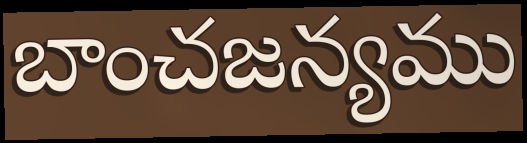
బాంచజన్యము